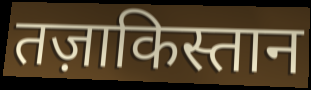
तज़ाकिस्तान